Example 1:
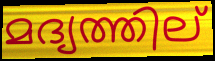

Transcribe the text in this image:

മദ്യത്തില്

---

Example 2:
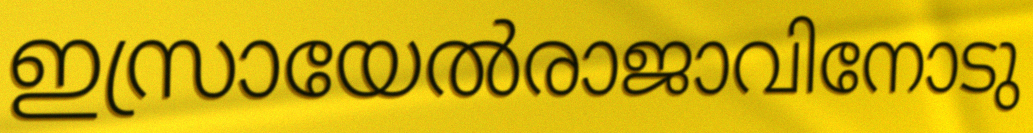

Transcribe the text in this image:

ഇസ്രായേൽരാജാവിനോടു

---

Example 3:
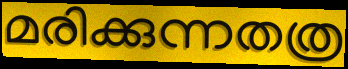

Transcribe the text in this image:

മരിക്കുന്നതത്ര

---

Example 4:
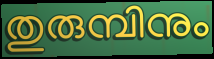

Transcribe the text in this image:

തുരുമ്പിനും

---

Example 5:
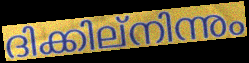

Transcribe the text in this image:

ദിക്കില്നിന്നും